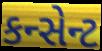
કન્સેન્ટ